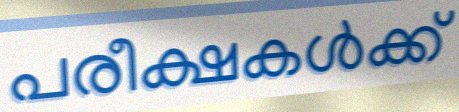
പരീക്ഷകൾക്ക്